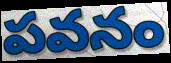
పవనం